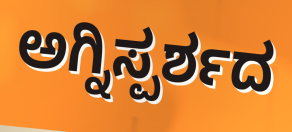
ಅಗ್ನಿಸ್ಪರ್ಶದ